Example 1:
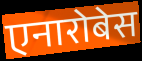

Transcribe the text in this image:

एनारोबेस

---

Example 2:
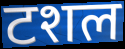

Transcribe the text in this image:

टशल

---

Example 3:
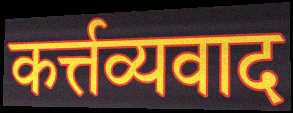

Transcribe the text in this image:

कर्त्तव्यवाद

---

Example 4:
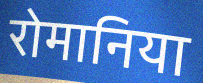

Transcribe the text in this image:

रोमानिया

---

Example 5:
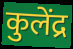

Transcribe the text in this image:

कुलेंद्र